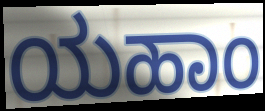
ಯಹಾಂ